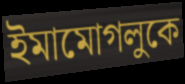
ইমামোগলুকে